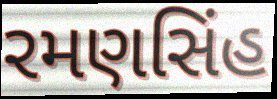
રમણસિંહ